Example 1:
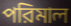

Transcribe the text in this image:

পরিমাল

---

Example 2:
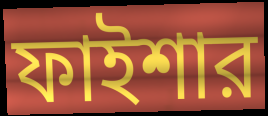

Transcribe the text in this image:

ফাইশার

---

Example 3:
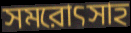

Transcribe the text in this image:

সমরোৎসাহ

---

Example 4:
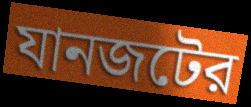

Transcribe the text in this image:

যানজটের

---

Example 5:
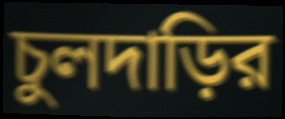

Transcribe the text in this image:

চুলদাড়ির